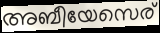
അബീയേസെര്